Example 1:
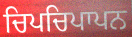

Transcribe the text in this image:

ਚਿਪਚਿਪਾਪਨ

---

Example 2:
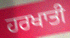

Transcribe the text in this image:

ਹਰਖਾਤੀ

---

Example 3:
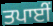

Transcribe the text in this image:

ਤਪਾਈਂ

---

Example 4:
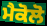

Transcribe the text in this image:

ਮੈਕੋਲੋ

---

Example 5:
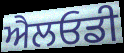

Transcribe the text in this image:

ਐਲਓਡੀ